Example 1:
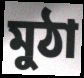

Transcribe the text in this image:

মুঠা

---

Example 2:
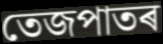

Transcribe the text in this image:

তেজপাতৰ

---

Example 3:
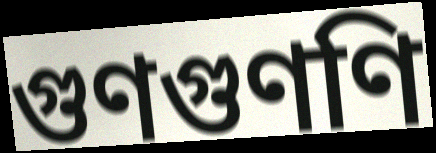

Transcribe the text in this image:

গুণগুণণি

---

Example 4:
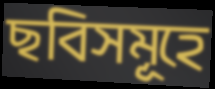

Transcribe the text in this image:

ছবিসমূহে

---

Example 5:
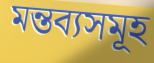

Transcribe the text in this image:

মন্তব্যসমূহ